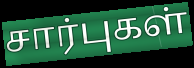
சார்புகள்